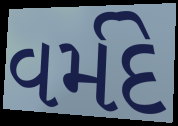
વર્મદે